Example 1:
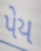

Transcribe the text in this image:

પેય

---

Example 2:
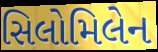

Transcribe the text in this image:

સિલોમિલેન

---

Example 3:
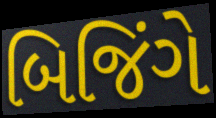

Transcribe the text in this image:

બિજિંગે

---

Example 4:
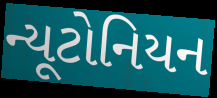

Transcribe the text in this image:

ન્યૂટોનિયન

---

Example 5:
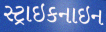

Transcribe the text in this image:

સ્ટ્રાઇકનાઇન